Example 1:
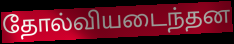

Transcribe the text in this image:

தோல்வியடைந்தன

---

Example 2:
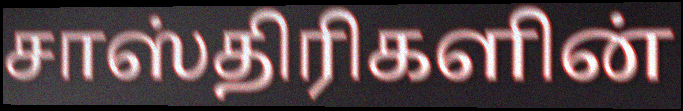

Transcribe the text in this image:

சாஸ்திரிகளின்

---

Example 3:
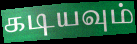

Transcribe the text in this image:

கடியவும்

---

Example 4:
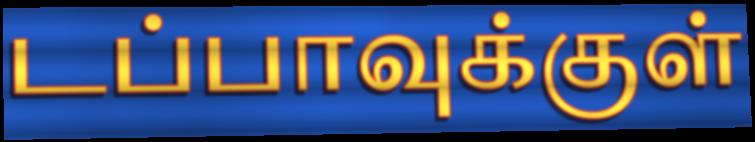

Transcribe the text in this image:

டப்பாவுக்குள்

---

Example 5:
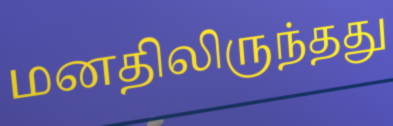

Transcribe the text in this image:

மனதிலிருந்தது